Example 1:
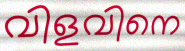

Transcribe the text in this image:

വിളവിനെ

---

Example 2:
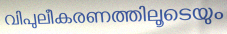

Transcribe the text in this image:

വിപുലീകരണത്തിലൂടെയും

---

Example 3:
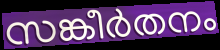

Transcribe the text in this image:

സങ്കീർതനം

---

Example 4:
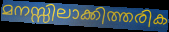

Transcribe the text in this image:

മനസ്സിലാക്കിത്തരിക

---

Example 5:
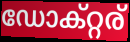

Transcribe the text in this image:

ഡോക്റ്റര്